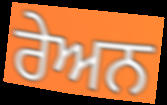
ਰੇਅਨ